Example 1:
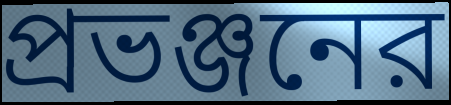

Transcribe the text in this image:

প্রভঞ্জনের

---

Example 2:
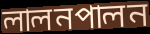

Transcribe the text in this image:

লালনপালন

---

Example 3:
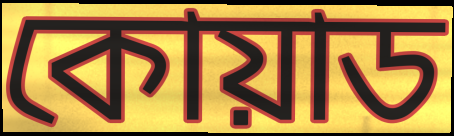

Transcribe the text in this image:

কোয়াড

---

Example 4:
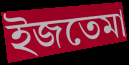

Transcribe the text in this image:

ইজতেমা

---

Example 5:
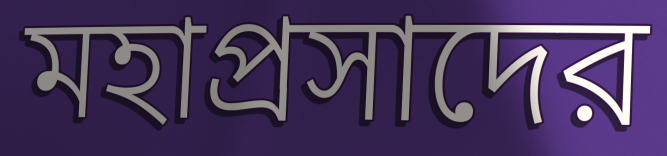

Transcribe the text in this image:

মহাপ্রসাদের